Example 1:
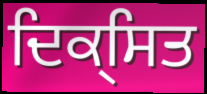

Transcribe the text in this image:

ਦਿਕ੍ਸਿਤ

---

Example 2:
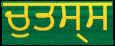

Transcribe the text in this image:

ਚੁਤਸ੍ਸ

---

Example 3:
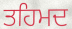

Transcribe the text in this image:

ਤਹਿਮਦ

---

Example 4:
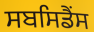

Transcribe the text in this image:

ਸਬਸਿਡੈਂਸ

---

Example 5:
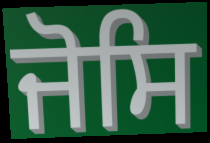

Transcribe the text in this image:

ਜੋਸਿ